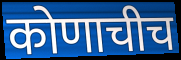
कोणाचीच